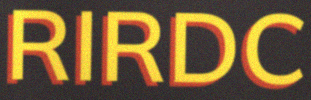
RIRDC